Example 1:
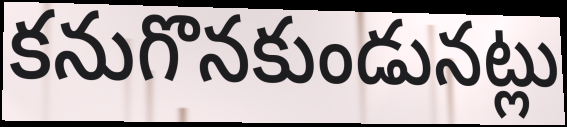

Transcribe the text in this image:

కనుగొనకుండునట్లు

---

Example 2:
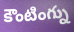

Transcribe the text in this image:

కౌంటింగ్ను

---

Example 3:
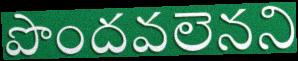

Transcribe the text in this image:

పొందవలెనని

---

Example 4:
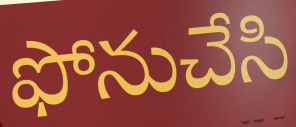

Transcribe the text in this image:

ఫోనుచేసి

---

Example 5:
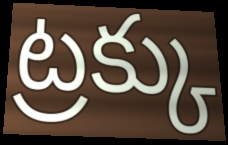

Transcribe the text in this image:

ట్రక్కు